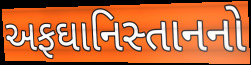
અફઘાનિસ્તાનનો